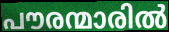
പൗരന്മാരിൽ